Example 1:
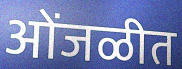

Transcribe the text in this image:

ओंजळीत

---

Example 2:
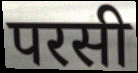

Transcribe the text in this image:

परसी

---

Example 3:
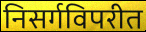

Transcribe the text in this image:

निसर्गविपरीत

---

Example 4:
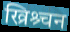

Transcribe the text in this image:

ख्रिश्र्चन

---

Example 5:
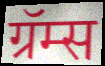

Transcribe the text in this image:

ग्रॅम्स